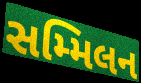
સમ્મિલન